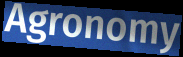
Agronomy